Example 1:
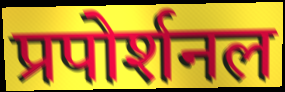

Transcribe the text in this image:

प्रपोर्शनल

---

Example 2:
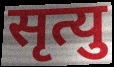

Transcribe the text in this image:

सृत्यु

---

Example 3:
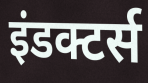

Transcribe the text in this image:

इंडक्टर्स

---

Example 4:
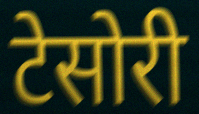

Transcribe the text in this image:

टेसोरी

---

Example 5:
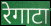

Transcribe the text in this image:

रेगाटा